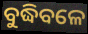
ବୁଦ୍ଧିବଳେ